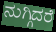
ನುಗ್ಗಿದರೆ